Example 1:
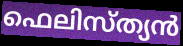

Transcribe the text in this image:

ഫെലിസ്ത്യൻ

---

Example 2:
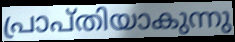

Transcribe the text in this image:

പ്രാപ്തിയാകുന്നു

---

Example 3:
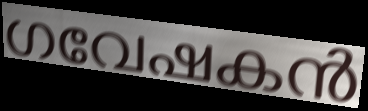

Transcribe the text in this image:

ഗവേഷകൻ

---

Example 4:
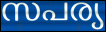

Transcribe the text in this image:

സപര്യ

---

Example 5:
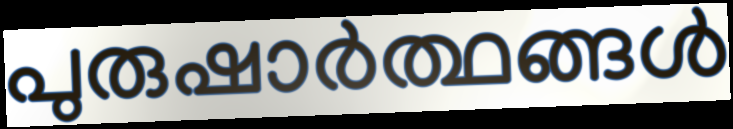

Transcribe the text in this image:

പുരുഷാർത്ഥങ്ങൾ